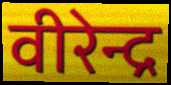
वीरेन्‍द्र